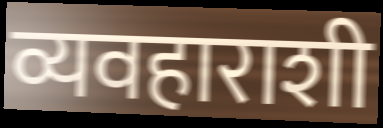
व्यवहाराशी